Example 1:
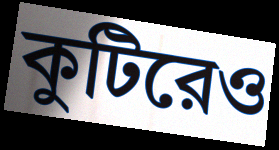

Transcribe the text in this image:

কুটিরেও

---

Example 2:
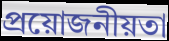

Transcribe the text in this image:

প্রয়োজনীয়তা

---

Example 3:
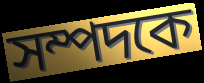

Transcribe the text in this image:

সম্পদকে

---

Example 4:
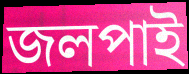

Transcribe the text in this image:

জলপাই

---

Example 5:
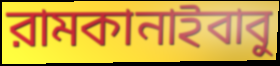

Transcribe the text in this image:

রামকানাইবাবু